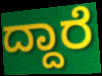
ದ್ದಾರೆ